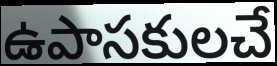
ఉపాసకులచే